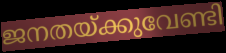
ജനതയ്ക്കുവേണ്ടി